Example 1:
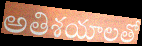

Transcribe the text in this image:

అతిశయాలతో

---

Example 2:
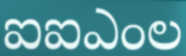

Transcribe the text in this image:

ఐఐఎంల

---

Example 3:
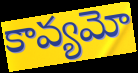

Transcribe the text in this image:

కావ్యమో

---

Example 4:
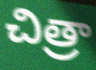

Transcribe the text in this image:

చిత్రా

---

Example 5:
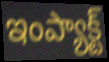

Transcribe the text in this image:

ఇంప్యాక్ట్